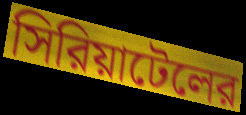
সিরিয়াটেলের